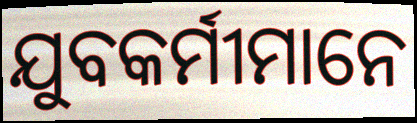
ଯୁବକର୍ମୀମାନେ